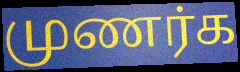
முணர்க